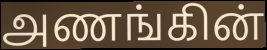
அணங்கின்